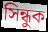
সিন্ধুক